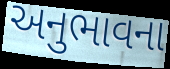
અનુભાવના